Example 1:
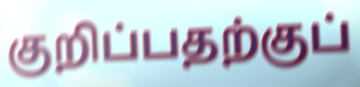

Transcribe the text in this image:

குறிப்பதற்குப்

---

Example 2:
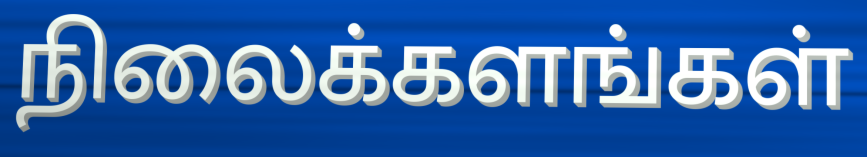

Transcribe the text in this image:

நிலைக்களங்கள்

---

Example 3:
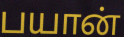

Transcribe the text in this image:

பயான்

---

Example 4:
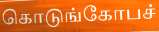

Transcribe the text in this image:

கொடுங்கோபச்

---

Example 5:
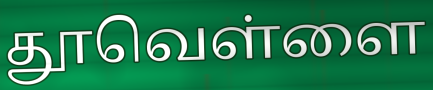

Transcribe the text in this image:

தூவெள்ளை